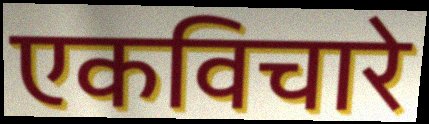
एकविचारे